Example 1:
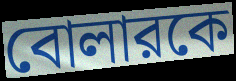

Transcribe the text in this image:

বোলারকে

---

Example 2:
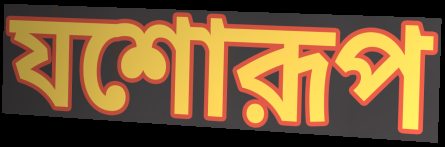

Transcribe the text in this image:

যশোরূপ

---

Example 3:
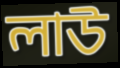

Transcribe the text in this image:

লাউ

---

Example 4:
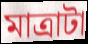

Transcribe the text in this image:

মাত্রাটা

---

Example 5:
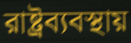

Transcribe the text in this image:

রাষ্ট্রব্যবস্থায়